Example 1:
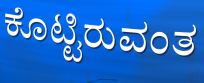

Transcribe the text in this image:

ಕೊಟ್ಟಿರುವಂತ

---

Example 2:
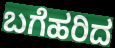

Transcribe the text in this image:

ಬಗೆಹರಿದ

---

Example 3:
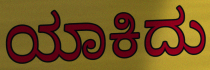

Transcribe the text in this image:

ಯಾಕಿದು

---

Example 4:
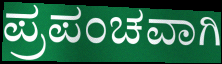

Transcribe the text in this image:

ಪ್ರಪಂಚವಾಗಿ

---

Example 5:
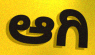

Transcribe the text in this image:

ಆಗಿ